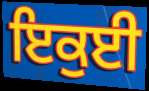
ਇਕੁਈ